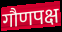
गौणपक्ष